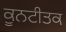
ਕੂਨਟੀਤਕ